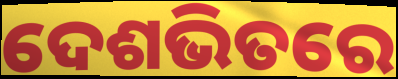
ଦେଶଭିତରେ